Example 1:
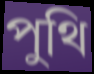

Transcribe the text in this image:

পুথি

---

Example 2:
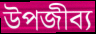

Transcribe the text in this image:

উপজীব্য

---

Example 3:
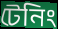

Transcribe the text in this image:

টেনিং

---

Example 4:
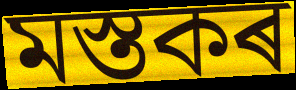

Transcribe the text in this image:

মস্তকৰ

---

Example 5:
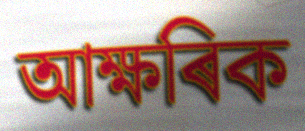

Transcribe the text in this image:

আক্ষৰিক